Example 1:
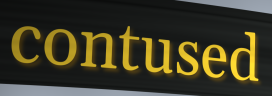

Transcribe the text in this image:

contused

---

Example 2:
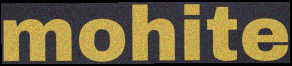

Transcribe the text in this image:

mohite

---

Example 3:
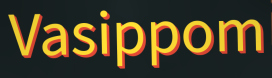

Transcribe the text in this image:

Vasippom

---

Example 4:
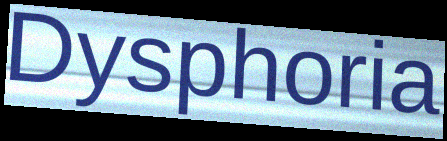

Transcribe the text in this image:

Dysphoria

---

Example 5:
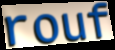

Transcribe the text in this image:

rouf